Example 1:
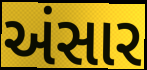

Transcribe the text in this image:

અંસાર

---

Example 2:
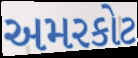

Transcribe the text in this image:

અમરકોટ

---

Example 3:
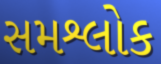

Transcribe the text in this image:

સમશ્લોક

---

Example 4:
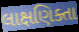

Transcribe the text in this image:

લાક્ષણિક્તા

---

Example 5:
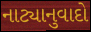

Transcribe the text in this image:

નાટ્યાનુવાદો